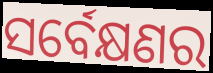
ସର୍ବେକ୍ଷଣର